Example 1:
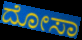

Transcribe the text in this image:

ದೋಸಾ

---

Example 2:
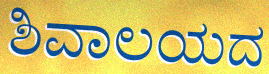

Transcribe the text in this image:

ಶಿವಾಲಯದ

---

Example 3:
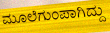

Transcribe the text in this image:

ಮೂಲೆಗುಂಪಾಗಿದ್ದು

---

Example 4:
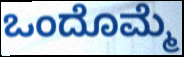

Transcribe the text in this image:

ಒಂದೊಮ್ಮೆ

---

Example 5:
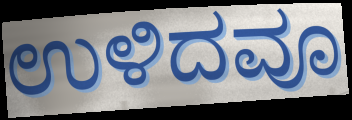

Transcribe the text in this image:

ಉಳಿದವೂ